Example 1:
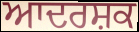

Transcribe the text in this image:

ਆਦਰਸ਼ਕ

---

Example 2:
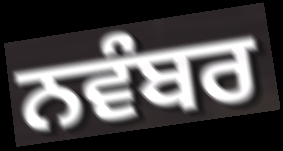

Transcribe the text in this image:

ਨਵੰਬਰ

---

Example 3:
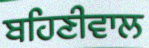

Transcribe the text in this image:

ਬਹਿਣੀਵਾਲ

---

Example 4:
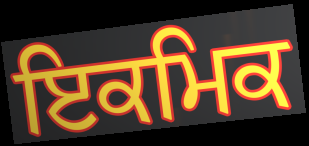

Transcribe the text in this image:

ਇਕਮਿਕ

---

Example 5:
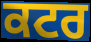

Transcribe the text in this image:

ਕਟਰ